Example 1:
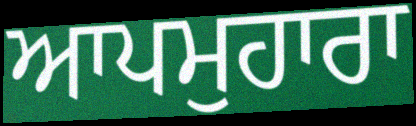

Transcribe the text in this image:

ਆਪਮੁਹਾਰਾ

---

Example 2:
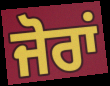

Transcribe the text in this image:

ਜੋਰਾਂ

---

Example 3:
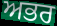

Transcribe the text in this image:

ਅਭਰ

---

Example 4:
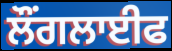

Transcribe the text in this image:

ਲੌਂਗਲਾਈਫ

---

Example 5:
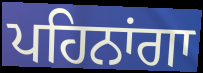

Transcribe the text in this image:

ਪਹਿਨਾਂਗਾ